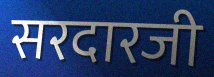
सरदारजी